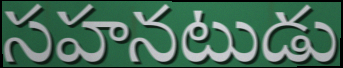
సహనటుడు